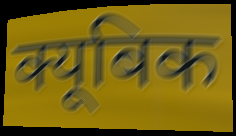
क्यूबिक